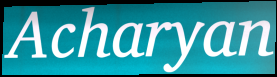
Acharyan